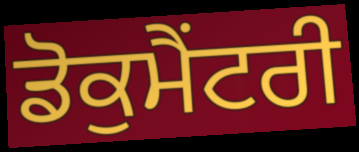
ਡੋਕੁਮੈਂਟਰੀ